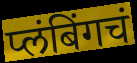
प्लंबिंगचं